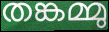
തങ്കമ്മു